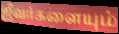
ஜீவர்களையும்